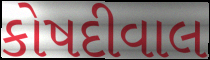
કોષદીવાલ